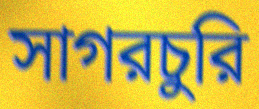
সাগরচুরি